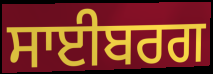
ਸਾਈਬਰਗ